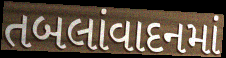
તબલાંવાદનમાં